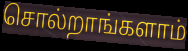
சொல்றாங்களாம்